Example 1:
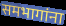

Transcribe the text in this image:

समभागांना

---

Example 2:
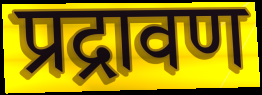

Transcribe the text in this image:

प्रद्रावण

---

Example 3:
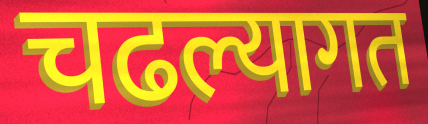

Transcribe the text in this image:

चढल्यागत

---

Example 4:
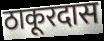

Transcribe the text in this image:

ठाकूरदास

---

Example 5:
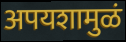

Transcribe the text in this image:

अपयशामुळं